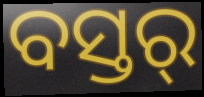
ବସ୍ତର୍